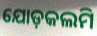
ଯୋଡ଼କଲମି